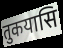
तुकयासि